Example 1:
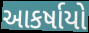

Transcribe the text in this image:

આકર્ષાયો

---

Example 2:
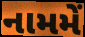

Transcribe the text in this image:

નામમેં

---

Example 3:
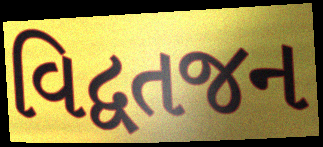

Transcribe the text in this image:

વિદ્વતજન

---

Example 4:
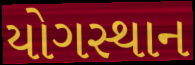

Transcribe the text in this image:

યોગસ્થાન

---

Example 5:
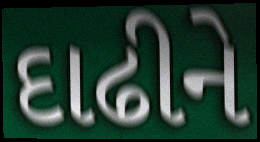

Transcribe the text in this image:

દાઢીને